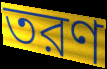
তরণ